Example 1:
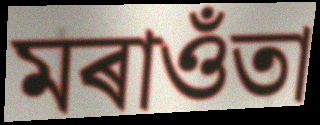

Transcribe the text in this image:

মৰাওঁতা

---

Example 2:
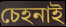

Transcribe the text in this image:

চেহনাই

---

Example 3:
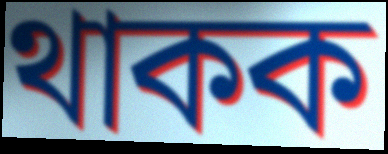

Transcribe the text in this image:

থাকক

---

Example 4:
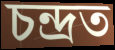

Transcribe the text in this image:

চন্দ্ৰত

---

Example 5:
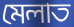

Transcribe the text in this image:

মেলাত